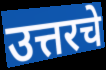
उत्तरचे